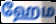
ஹேம